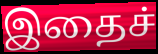
இதைச்